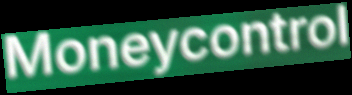
Moneycontrol